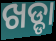
ଖଡ୍ଡା